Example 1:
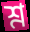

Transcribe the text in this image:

শ্ন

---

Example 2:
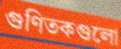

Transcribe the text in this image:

গুণিতকগুলো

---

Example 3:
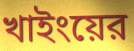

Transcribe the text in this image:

খাইংয়ের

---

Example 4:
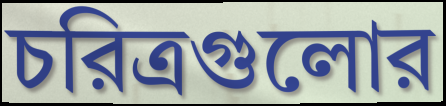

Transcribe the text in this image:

চরিত্রগুলোর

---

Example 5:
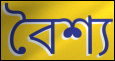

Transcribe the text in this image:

বৈশ্য